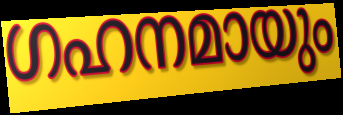
ഗഹനമായും